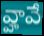
వ్హావే